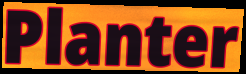
Planter